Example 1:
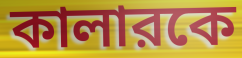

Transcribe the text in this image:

কালারকে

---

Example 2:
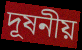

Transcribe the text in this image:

দূষনীয়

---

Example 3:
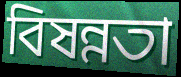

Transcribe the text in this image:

বিষন্নতা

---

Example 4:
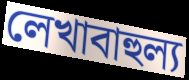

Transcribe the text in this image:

লেখাবাহুল্য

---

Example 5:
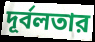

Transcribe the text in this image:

দূর্বলতার